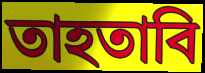
তাহতাবি